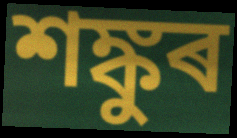
শঙ্কুৰ